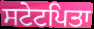
ਸਟੇਟਪਿਤਾ